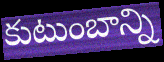
కుటుంబాన్ని